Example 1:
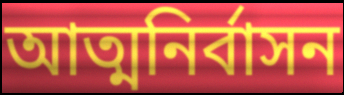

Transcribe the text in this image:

আত্মনির্বাসন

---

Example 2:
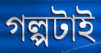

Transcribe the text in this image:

গল্পটাই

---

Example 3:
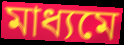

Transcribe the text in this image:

মাধ্যমে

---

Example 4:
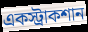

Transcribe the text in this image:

একস্ট্রাকশান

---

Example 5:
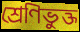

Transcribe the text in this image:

শ্রেণিভুক্ত